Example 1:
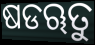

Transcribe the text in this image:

ଷଡୠତୁ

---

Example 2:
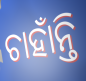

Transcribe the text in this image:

ଚାହାଁନ୍ତି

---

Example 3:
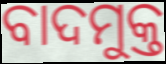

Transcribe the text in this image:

ବାଦମୁକ୍ତ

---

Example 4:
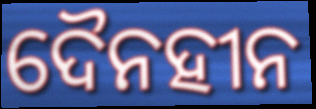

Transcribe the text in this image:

ଦୈନହୀନ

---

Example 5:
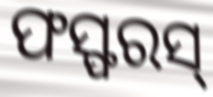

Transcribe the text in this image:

ଫସ୍ଫରସ୍